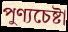
পুণ্যচেষ্টা